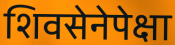
शिवसेनेपेक्षा